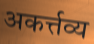
अकर्त्तव्य